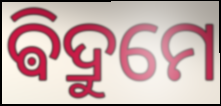
ଵିଦ୍ରୁମେ